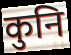
कुनि